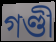
গণ্ডী